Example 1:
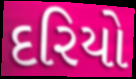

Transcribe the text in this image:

દરિયો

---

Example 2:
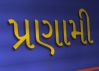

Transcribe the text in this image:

પ્રણામી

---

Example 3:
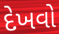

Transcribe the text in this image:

દેખવો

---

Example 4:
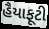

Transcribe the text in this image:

હૈયાફૂટી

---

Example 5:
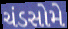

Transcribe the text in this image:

ચંડસોમે